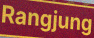
Rangjung